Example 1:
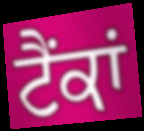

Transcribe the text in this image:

ਟੈਂਕਾਂ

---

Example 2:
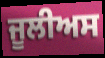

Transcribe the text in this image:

ਜੂਲੀਅਸ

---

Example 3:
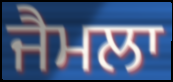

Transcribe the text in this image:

ਜੈਮਲਾ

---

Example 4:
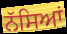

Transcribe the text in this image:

ਨੱਸਿਆਂ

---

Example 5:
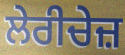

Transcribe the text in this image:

ਲੇਰੀਚੇਜ਼